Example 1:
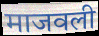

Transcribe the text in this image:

माजवली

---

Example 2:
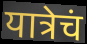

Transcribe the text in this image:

यात्रेचं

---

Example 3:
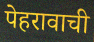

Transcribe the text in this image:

पेहरावाची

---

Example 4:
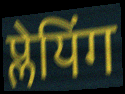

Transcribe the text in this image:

प्लेयिंग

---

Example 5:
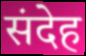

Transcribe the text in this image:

संदेह